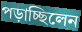
পড়াচ্ছিলেন